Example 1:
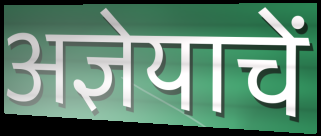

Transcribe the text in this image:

अज्ञेयाचें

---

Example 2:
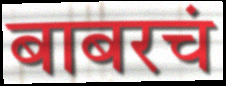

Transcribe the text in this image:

बाबरचं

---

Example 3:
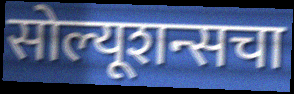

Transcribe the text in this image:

सोल्यूशन्सचा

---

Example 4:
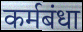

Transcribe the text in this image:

कर्मबंधा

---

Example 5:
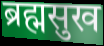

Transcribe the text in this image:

ब्रह्मसुख